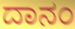
ದಾನಂ